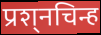
प्रश्नचिन्ह